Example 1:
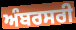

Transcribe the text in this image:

ਅੰਬਰਸਰੀ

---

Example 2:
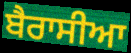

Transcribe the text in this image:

ਬੈਰਾਸੀਆ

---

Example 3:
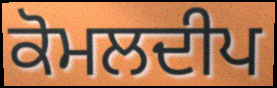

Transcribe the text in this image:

ਕੋਮਲਦੀਪ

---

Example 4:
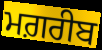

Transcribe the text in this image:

ਮਗ਼ਰੀਬ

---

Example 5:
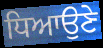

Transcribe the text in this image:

ਧਿਆਉਣੇ